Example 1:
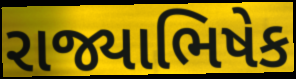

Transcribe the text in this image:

રાજ્યાભિષેક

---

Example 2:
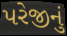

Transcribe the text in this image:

પરેજીનું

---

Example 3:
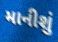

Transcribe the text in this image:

માનીશું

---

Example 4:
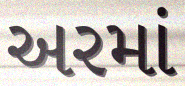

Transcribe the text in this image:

અરમાં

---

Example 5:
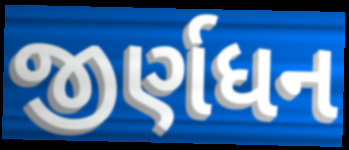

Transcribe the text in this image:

જીર્ણધન